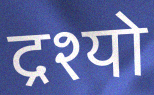
द्रश्यो